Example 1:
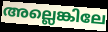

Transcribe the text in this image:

അല്ലെങ്കിലേ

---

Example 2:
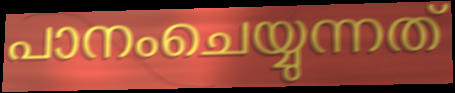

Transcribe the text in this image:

പാനംചെയ്യുന്നത്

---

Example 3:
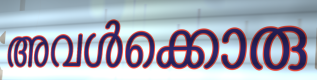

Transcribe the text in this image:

അവൾക്കൊരു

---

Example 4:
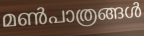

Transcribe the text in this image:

മൺപാത്രങ്ങൾ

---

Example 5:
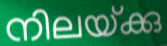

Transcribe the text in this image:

നിലയ്‌ക്കു